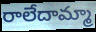
రాలేదామ్మా